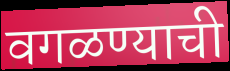
वगळण्याची